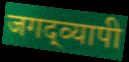
जगद्व्यापी